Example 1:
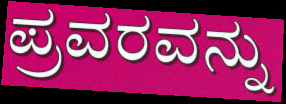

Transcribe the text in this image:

ಪ್ರವರವನ್ನು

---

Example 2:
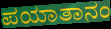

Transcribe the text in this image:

ಪಯಾತಾನಂ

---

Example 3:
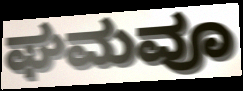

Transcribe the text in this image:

ಘಮವೂ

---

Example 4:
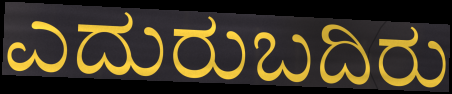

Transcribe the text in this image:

ಎದುರುಬದಿರು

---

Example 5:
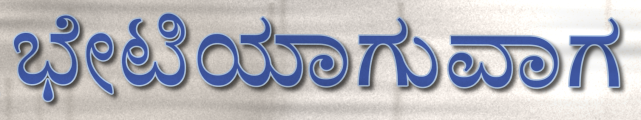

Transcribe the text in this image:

ಭೇಟಿಯಾಗುವಾಗ